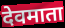
देवमाता